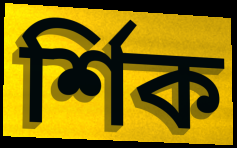
র্শিক